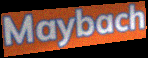
Maybach